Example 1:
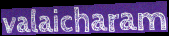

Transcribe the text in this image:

valaicharam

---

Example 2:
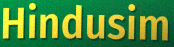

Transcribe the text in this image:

Hindusim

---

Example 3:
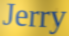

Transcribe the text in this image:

Jerry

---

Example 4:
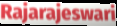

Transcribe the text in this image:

Rajarajeswari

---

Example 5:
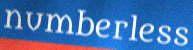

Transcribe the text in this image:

numberless